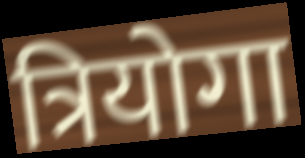
त्रियोगा